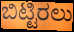
ಬಿಟ್ಟಿರಲು